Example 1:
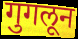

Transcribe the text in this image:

गुगलून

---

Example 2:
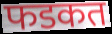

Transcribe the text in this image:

फडकत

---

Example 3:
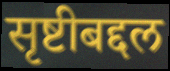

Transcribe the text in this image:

सृष्टीबद्दल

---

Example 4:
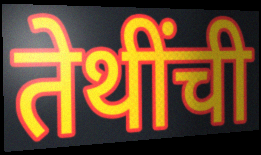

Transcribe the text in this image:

तेथींची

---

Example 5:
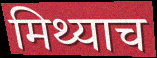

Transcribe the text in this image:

मिथ्याच